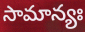
సామాన్యః